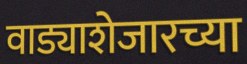
वाड्याशेजारच्या